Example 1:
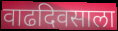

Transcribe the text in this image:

वाढदिवसाला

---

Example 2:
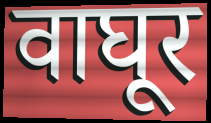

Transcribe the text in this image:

वाघूर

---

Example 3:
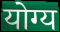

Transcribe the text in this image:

योग्य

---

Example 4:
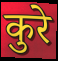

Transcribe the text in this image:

कुरे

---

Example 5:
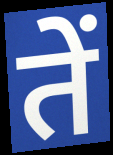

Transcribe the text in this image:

तें